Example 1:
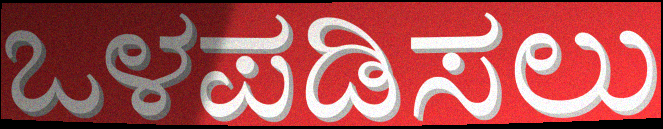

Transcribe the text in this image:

ಒಳಪಡಿಸಲು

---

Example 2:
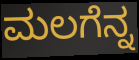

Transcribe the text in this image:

ಮಲಗೆನ್ನ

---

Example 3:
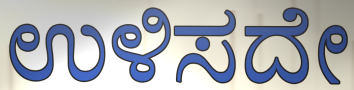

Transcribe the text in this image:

ಉಳಿಸದೇ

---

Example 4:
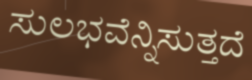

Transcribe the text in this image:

ಸುಲಭವೆನ್ನಿಸುತ್ತದೆ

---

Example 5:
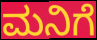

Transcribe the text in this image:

ಮನಿಗೆ